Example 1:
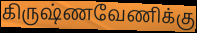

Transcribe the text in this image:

கிருஷ்ணவேணிக்கு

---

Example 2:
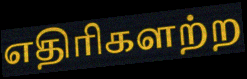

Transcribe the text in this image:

எதிரிகளற்ற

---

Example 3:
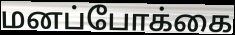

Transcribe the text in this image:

மனப்போக்கை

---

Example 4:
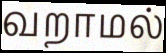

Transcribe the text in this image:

வறாமல்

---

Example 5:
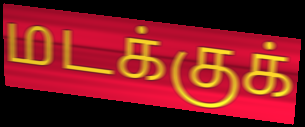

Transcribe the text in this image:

மடக்குக்